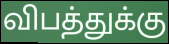
விபத்துக்கு